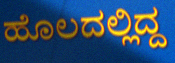
ಹೊಲದಲ್ಲಿದ್ದ